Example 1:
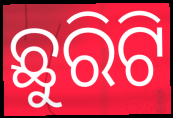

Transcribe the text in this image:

ଛୁରିଟି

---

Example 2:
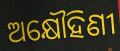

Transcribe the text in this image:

ଅକ୍ଷୌହିଣୀ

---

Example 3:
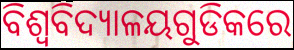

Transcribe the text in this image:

ବିଶ୍ଵବିଦ୍ୟାଳୟଗୁଡିକରେ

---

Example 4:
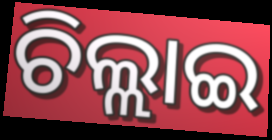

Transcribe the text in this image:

ଚିଲ୍ଲାଇ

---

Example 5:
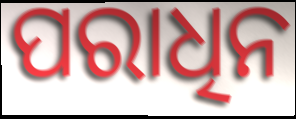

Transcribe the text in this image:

ପରାଧିନ